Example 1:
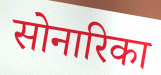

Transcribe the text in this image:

सोनारिका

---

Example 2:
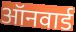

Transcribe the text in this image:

ऑनवार्ड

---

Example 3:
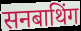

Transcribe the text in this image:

सनबाथिंग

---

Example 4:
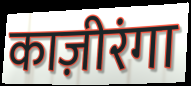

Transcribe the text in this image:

काज़ीरंगा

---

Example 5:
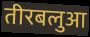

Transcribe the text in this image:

तीरबलुआ